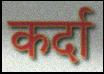
कर्दा